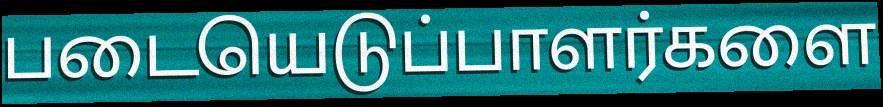
படையெடுப்பாளர்களை